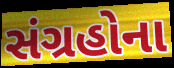
સંગ્રહોના